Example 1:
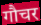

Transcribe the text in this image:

गौचर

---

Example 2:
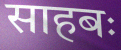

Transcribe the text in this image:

साहबः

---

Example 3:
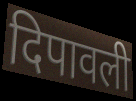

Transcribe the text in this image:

दिपावली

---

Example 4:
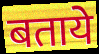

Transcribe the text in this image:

बताये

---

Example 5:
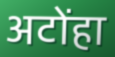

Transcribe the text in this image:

अटोंहा